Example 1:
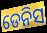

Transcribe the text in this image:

ଡେନିସ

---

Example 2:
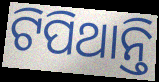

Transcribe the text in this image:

ଟିପିଥାନ୍ତି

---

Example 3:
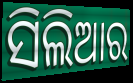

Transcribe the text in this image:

ସିଲିଆର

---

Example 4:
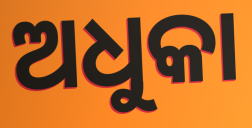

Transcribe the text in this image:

ଅଧୁକା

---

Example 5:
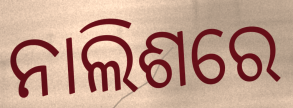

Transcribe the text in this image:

ନାଲିଶରେ